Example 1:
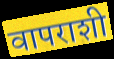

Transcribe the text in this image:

वापराशी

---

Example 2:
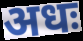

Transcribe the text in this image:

अधः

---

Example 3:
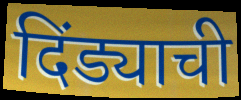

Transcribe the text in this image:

दिंड्याची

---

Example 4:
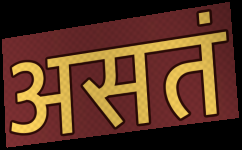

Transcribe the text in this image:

असतं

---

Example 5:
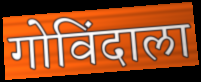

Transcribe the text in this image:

गोविंदाला